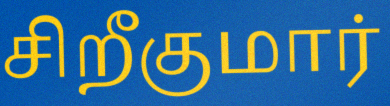
சிறீகுமார்